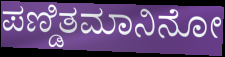
ಪಣ್ಡಿತಮಾನಿನೋ